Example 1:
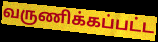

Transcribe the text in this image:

வருணிக்கப்பட்ட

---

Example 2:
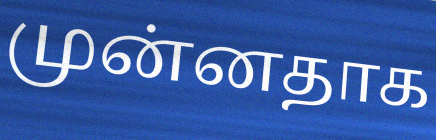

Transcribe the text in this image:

முன்னதாக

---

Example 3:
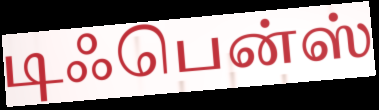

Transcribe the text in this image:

டிஃபென்ஸ்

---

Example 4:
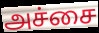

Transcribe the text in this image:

அச்சை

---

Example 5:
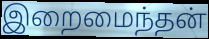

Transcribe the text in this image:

இறைமைந்தன்